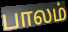
பாலம்